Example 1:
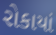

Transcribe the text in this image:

રોકાયાં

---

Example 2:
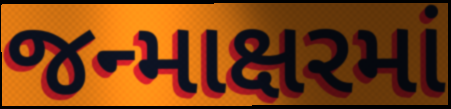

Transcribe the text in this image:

જન્માક્ષરમાં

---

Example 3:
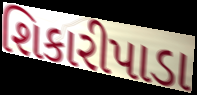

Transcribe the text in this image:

શિકારીપાડા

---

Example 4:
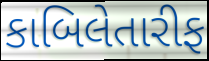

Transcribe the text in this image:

કાબિલેતારીફ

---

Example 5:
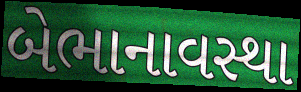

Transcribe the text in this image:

બેભાનાવસ્થા